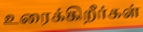
உரைக்கிறீர்கள்